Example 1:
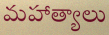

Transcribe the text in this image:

మహాత్యాలు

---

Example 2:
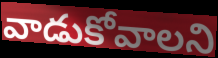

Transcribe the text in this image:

వాడుకోవాలని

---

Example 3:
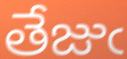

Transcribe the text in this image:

తేజుఁ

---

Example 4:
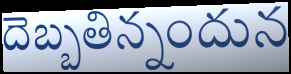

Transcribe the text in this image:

దెబ్బతిన్నందున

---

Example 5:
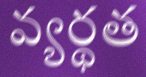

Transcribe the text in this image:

వ్యర్థత